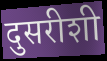
दुसरीशी